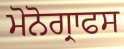
ਮੋਨੋਗ੍ਰਾਫਸ